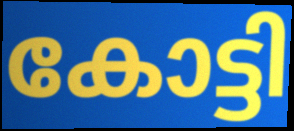
കോട്ടി